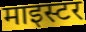
माइस्टर